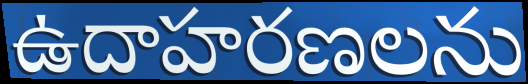
ఉదాహరణలను